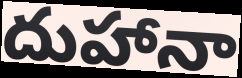
దుహానా